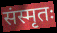
संस्मृतः